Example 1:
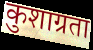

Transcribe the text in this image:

कुशाग्रता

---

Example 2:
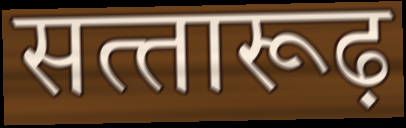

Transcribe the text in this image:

सत्‍तारूढ़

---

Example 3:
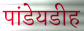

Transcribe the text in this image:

पांडेयडीह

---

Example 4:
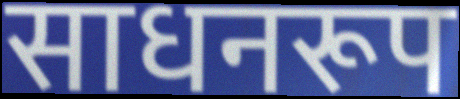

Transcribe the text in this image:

साधनरूप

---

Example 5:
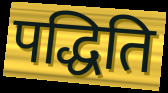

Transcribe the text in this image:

पद्धिति